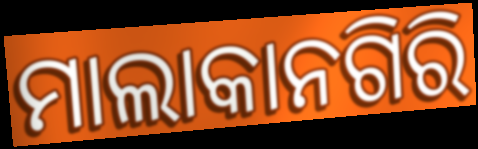
ମାଲାକାନଗିରି